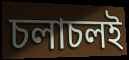
চলাচলই